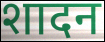
शादन